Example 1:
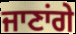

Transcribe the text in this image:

ਜਾਣਾਂਗੇ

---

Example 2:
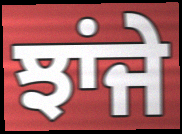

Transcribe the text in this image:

ਝਾਂਜੇ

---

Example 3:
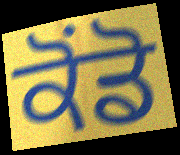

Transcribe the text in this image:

ਕੋਂਡੋ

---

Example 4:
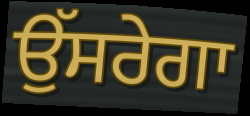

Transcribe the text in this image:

ਉੱਸਰੇਗਾ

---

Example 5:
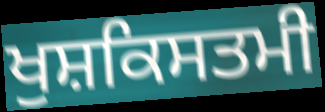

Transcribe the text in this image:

ਖੁਸ਼ਕਿਸਤਮੀ